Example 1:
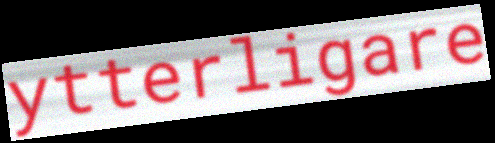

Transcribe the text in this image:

ytterligare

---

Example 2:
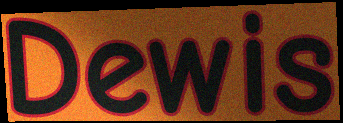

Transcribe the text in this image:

Dewis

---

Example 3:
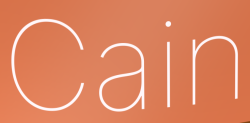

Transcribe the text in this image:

Cain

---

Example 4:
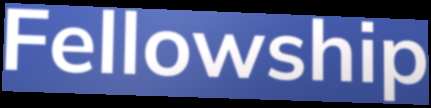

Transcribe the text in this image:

Fellowship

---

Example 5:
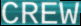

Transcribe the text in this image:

CREW